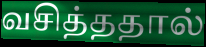
வசித்ததால்